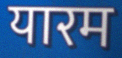
यारम